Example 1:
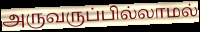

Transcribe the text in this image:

அருவருப்பில்லாமல்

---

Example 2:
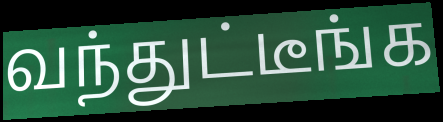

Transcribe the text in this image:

வந்துட்டீங்க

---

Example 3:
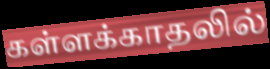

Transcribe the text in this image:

கள்ளக்காதலில்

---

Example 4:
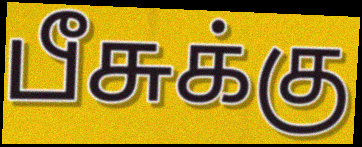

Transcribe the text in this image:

பீசுக்கு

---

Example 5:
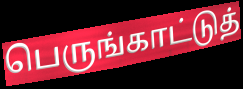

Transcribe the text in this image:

பெருங்காட்டுத்